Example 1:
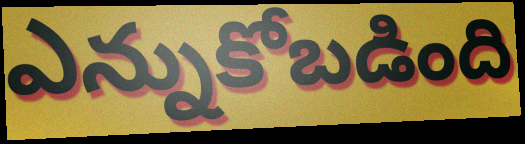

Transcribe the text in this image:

ఎన్నుకోబడింది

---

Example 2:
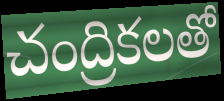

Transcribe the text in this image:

చంద్రికలతో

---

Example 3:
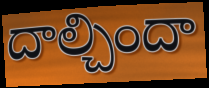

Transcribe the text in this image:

దాల్చిందా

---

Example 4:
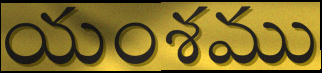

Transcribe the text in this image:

యంశము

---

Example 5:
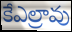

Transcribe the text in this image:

కేఎల్రావు